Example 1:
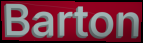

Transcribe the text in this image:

Barton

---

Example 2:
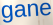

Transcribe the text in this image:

gane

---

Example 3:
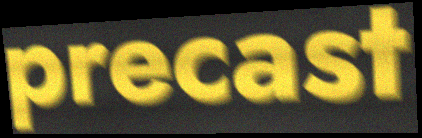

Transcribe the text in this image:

precast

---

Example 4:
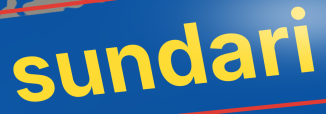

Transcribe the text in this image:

sundari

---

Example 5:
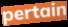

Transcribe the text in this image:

pertain